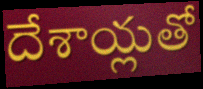
దేశాయ్లతో